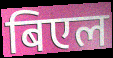
बिएल